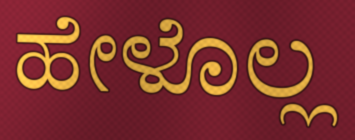
ಹೇಳೊಲ್ಲ